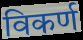
विकर्ण